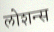
लोशन्स